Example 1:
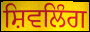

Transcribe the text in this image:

ਸ਼ਿਵਲਿੰਗ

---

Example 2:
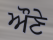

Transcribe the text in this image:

ਔਣੇ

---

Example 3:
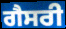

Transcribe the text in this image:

ਗੈਸਰੀ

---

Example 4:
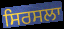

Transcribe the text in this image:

ਸਿਰਸਲਾ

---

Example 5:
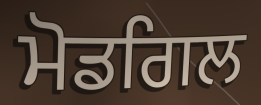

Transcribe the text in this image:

ਮੋਡਗਿਲ